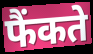
फैंकते